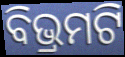
ବିଭ୍ରମଟି